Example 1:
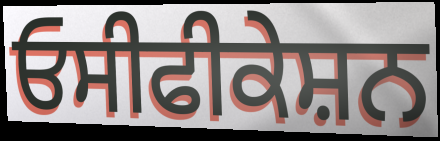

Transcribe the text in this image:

ਓਸੀਫੀਕੇਸ਼ਨ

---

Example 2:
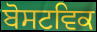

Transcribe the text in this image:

ਬੋਸਟਵਿਕ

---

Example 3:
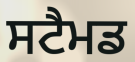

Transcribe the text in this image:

ਸਟੈਮਡ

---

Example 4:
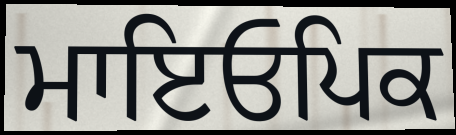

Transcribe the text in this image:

ਮਾਇਓਪਿਕ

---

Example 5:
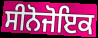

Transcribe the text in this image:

ਸੀਨੋਜੋਇਕ